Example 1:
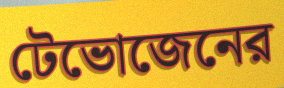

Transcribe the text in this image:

টেভোজেনের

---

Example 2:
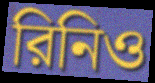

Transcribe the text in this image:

রিনিও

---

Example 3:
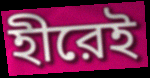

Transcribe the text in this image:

হীরেই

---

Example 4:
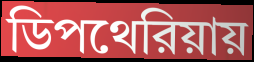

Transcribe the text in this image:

ডিপথেরিয়ায়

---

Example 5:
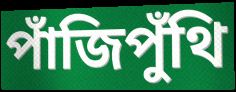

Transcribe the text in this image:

পাঁজিপুঁথি